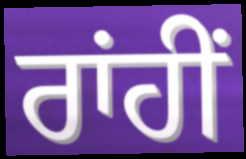
ਰਾਂਹੀਂ